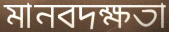
মানবদক্ষতা